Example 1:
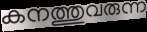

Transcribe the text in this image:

കനത്തുവരുന്ന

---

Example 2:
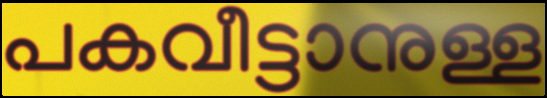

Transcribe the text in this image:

പകവീട്ടാനുള്ള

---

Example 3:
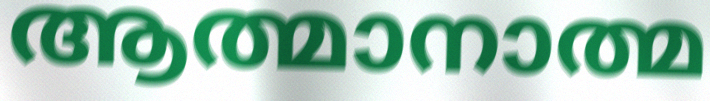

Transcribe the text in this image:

ആത്മാനാത്മ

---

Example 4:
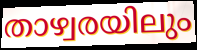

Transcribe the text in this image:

താഴ്വരയിലും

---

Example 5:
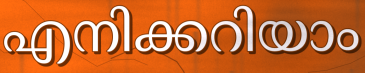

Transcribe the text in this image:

എനിക്കറിയാം